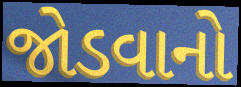
જોડવાનો